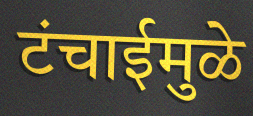
टंचाईमुळे